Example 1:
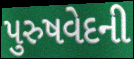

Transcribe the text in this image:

પુરુષવેદની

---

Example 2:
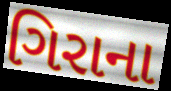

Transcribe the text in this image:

ગિરાના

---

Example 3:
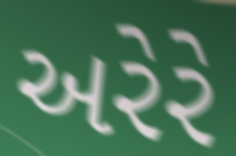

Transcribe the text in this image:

અરેરે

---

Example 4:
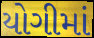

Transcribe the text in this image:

યોગીમાં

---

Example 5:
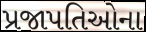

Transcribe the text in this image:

પ્રજાપતિઓના